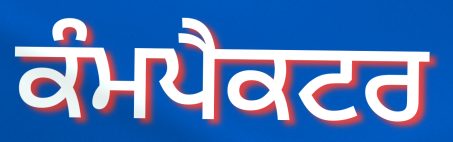
ਕੰਮਪੈਕਟਰ